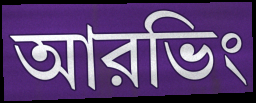
আরভিং